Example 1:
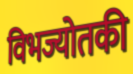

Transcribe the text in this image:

विभज्योतकी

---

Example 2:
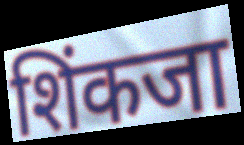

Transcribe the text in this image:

शिंकजा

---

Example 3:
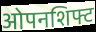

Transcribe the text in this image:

ओपनशिफ्ट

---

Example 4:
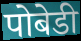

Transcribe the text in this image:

पोबेडी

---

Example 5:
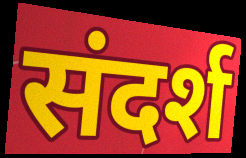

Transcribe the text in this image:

संदर्श